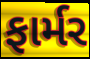
ફાર્મર